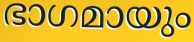
ഭാഗമായും